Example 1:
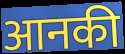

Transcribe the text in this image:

आनकी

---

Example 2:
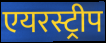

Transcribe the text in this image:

एयरस्ट्रीप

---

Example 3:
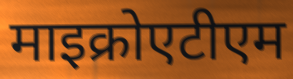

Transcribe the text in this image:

माइक्रोएटीएम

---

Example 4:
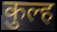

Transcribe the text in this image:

कुल्ह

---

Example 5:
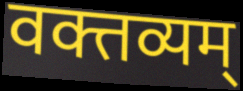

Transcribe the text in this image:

वक्तव्यम्